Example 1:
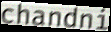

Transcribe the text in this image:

chandni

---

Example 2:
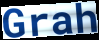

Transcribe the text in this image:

Grah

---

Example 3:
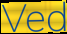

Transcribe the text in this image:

Ved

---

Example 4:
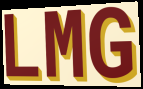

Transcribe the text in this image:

LMG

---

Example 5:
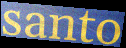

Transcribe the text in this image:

santo